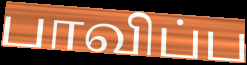
பாவிப்ப